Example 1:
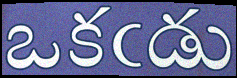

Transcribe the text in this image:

ఒకఁడు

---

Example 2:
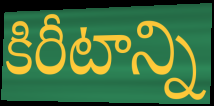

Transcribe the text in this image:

కిరీటాన్ని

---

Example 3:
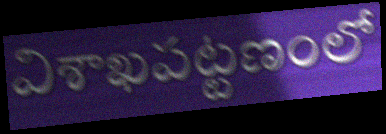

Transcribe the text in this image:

విశాఖపట్టణంలో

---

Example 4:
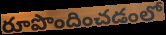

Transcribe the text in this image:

రూపొందించడంలో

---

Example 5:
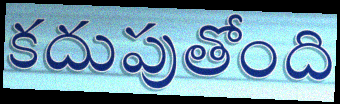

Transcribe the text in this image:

కదుపుతోంది